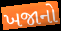
ખજાનો